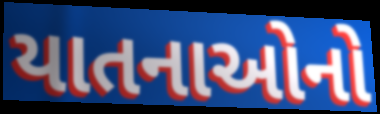
યાતનાઓનો